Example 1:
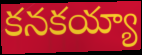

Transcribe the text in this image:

కనకయ్యా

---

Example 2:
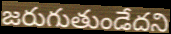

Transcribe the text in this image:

జరుగుతుండేదని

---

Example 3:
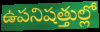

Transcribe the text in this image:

ఉపనిషత్తుల్లో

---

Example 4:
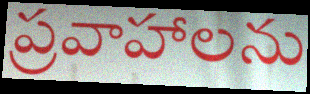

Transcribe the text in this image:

ప్రవాహాలను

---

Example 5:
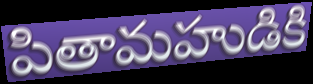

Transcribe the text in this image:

పితామహుడికి